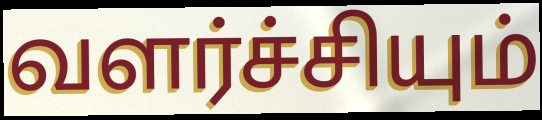
வளர்ச்சியும்